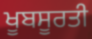
ਖੂਬਸੂਰਤੀ